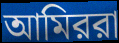
আমিররা